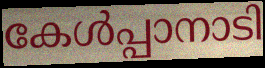
കേൾപ്പാനാടി